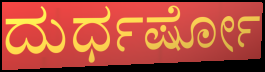
ದುರ್ಧರ್ಷೋ